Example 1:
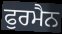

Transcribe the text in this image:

ਫੁਰਮੈਨ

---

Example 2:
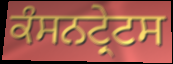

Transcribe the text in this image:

ਕੰਸਨਟ੍ਰੇਟਸ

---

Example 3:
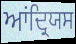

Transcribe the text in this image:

ਆਂਦ੍ਰਿਯਸ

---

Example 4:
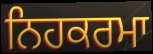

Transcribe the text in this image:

ਨਿਹਕਰਮਾ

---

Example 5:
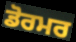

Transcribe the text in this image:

ਡੋਰਮਰ